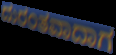
ದುರಂತವಾದಾಗ